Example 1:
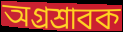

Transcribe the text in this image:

অগ্রশ্রাবক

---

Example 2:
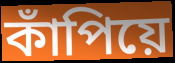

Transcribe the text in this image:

কাঁপিয়ে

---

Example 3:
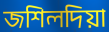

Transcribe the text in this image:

জশিলদিয়া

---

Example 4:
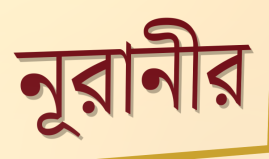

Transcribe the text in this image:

নূরানীর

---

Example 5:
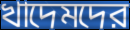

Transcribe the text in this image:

খাদেমদের